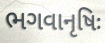
ભગવાનૃષિઃ